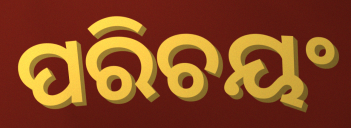
ପରିଚୟଂ